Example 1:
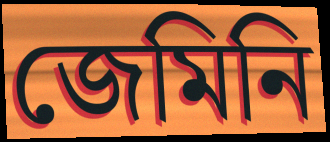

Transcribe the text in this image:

জেমিনি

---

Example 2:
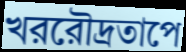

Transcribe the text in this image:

খররৌদ্রতাপে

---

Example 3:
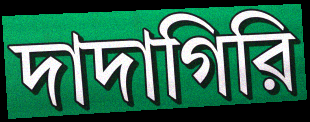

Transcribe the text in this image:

দাদাগিরি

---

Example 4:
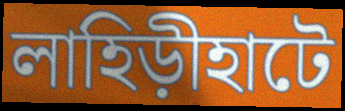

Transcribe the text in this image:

লাহিড়ীহাটে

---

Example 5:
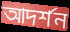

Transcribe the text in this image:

আদর্শন